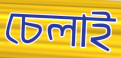
চেলাই